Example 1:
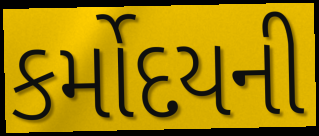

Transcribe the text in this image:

કર્મોદયની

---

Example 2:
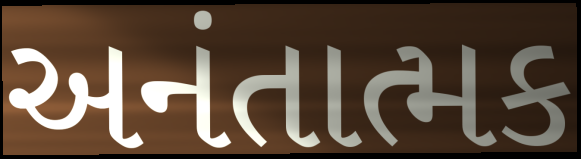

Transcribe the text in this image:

અનંતાત્મક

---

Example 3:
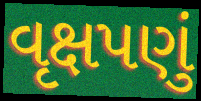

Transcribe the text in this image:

વૃક્ષપણું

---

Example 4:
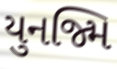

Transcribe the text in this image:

યુનજ્મિ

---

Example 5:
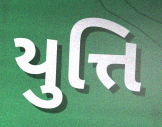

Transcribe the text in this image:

યુત્તિ